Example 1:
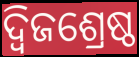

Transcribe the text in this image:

ଦ୍ୱିଜଶ୍ରେଷ୍ଠ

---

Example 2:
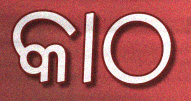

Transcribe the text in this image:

କାଠ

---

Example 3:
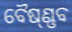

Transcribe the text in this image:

ବୈଷ୍ଣ୍ଣବ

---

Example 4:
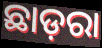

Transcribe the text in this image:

ଛାଡ଼ରା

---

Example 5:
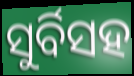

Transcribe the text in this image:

ସୁର୍ବିସହ